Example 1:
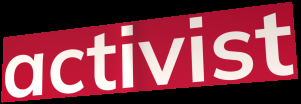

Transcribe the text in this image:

activist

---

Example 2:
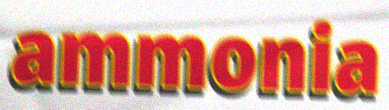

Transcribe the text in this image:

ammonia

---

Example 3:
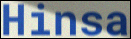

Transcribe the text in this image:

Hinsa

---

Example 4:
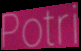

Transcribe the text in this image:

Potri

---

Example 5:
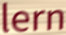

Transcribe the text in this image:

lern